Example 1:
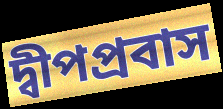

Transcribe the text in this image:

দ্বীপপ্রবাস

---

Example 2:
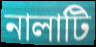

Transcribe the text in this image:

নালাটি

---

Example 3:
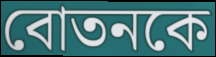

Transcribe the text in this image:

বোতনকে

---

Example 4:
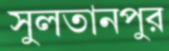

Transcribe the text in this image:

সুলতানপুর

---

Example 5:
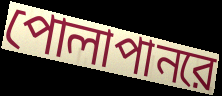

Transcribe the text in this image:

পোলাপানরে